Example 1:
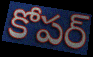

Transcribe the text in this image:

కోపర్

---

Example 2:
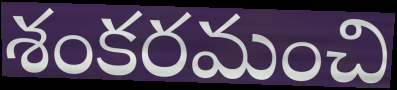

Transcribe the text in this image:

శంకరమంచి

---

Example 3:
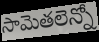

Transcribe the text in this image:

సామెతలెన్నో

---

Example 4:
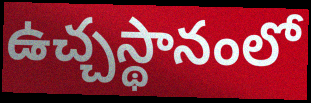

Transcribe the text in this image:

ఉచ్చస్థానంలో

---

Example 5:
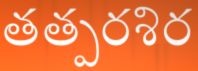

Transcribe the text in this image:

తత్పరశిర